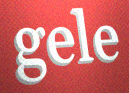
gele